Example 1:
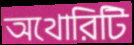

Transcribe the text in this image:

অথোরিটি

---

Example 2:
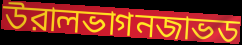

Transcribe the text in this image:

উরালভাগনজাভড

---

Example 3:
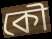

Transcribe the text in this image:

কৌ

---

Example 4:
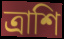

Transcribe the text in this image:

ত্রাশি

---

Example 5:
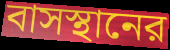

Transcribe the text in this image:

বাসস্থানের